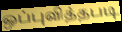
ஒப்புவித்தபடி